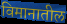
विमानातील